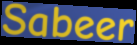
Sabeer